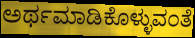
ಅರ್ಥಮಾಡಿಕೊಳ್ಳುವಂತೆ